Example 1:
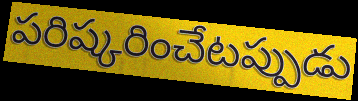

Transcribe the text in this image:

పరిష్కరించేటప్పుడు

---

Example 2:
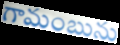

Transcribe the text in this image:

గామంబును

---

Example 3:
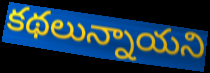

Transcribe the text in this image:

కథలున్నాయని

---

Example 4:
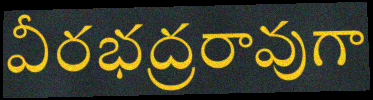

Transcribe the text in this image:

వీరభద్రరావుగా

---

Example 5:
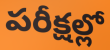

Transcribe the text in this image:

పరీక్షల్లో